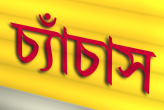
চ্যাঁচাস